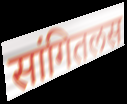
सांगितलस